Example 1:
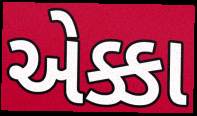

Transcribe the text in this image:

એક્કા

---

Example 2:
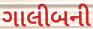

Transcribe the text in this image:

ગાલીબની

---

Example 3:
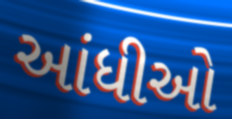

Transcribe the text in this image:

આંધીઓ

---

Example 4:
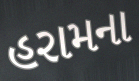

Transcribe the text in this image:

હરામના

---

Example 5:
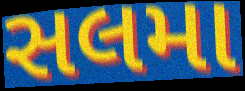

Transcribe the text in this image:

સલમા